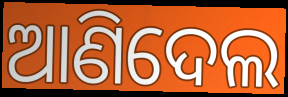
ଆଣିଦେଲ